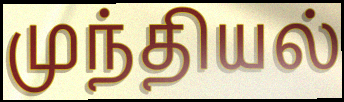
முந்தியல்